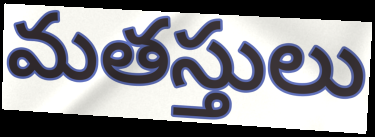
మతస్తులు